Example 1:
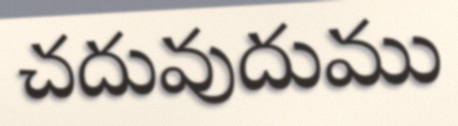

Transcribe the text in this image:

చదువుదుము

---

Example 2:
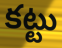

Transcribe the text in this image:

కట్టు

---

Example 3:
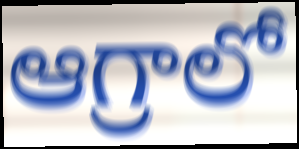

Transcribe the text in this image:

ఆగ్రాలో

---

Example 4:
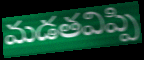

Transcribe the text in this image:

మడతవిప్పి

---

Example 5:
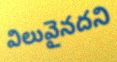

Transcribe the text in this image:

విలువైనదని